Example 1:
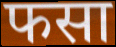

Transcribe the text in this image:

फसा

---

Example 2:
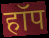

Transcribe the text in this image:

हॉप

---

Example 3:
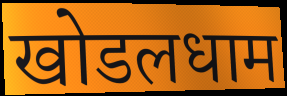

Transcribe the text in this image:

खोडलधाम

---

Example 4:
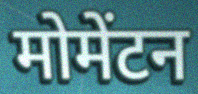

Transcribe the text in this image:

मोमेंटन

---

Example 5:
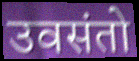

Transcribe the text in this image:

उवसंतो